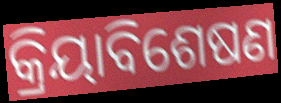
କ୍ରିୟାବିଶେଷଣ